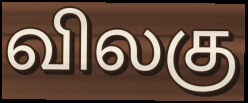
விலகு